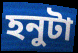
হনুটা